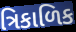
ત્રિકાળિક